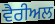
ਵੈਰੀਅਲ